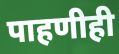
पाहणीही